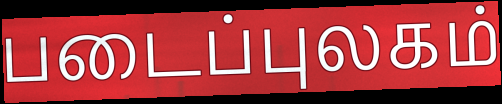
படைப்புலகம்